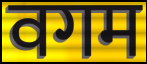
वगम